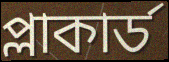
প্লাকার্ড